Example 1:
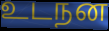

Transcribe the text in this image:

உடநன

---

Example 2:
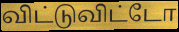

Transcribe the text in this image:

விட்டுவிட்டோ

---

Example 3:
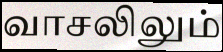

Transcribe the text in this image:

வாசலிலும்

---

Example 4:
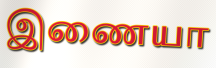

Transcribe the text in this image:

இணையா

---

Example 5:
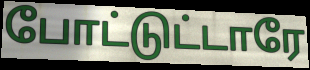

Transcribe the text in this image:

போட்டுட்டாரே